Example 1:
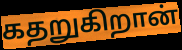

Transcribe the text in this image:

கதறுகிறான்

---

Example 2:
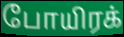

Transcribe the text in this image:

போயிரக்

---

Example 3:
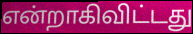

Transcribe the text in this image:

என்றாகிவிட்டது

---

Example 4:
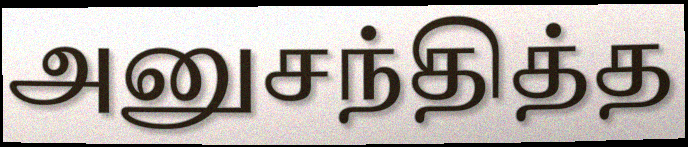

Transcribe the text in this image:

அனுசந்தித்த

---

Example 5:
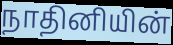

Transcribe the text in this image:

நாதினியின்